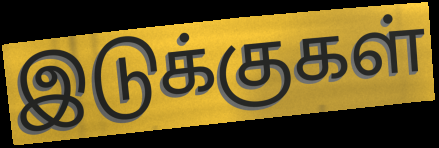
இடுக்குகள்